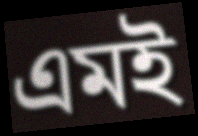
এমই